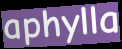
aphylla